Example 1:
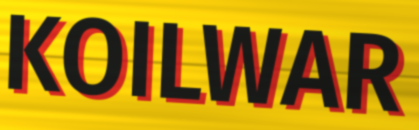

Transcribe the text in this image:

KOILWAR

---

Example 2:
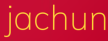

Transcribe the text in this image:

jachun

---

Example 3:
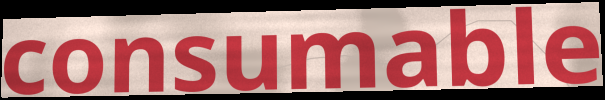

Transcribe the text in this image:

consumable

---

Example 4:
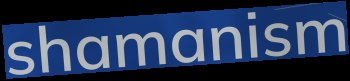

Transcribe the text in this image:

shamanism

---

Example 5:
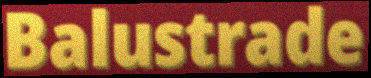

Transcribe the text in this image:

Balustrade